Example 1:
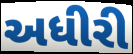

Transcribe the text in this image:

અધીરી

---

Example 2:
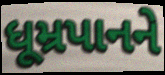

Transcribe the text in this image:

ધૂમ્રપાનને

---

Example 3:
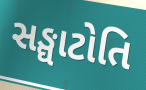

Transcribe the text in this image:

સઙ્ઘાટોતિ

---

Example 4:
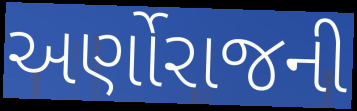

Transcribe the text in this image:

અર્ણોરાજની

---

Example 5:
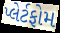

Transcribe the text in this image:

પ્લેર્ટફોમ